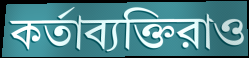
কর্তাব্যক্তিরাও